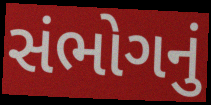
સંભોગનું